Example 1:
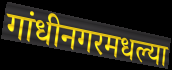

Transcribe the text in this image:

गांधीनगरमधल्या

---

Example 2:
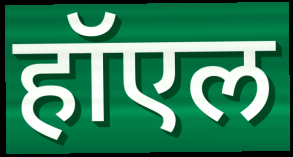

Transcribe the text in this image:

हॉएल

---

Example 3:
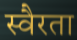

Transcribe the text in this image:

स्वैरता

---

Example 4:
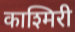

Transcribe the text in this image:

काश्मिरी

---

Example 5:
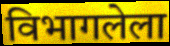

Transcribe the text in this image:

विभागलेला